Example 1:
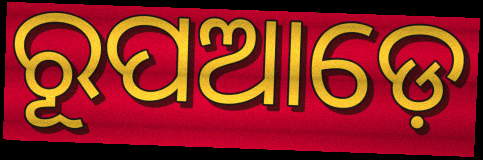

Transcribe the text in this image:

ରୂପଆଡ଼େ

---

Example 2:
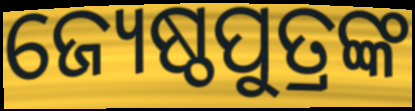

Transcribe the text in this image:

ଜ୍ୟେଷ୍ଠପୁତ୍ରଙ୍କ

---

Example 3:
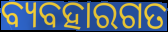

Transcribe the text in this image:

ବ୍ୟବହାରଗତ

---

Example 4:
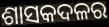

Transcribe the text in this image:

ଶାସକଦଳର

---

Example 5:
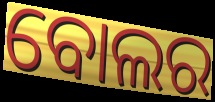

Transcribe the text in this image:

ବୋଲର